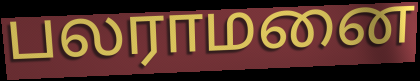
பலராமனை